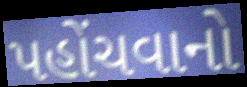
પહોંચવાનો